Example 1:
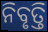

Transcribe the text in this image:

ନିବୃତ୍ତି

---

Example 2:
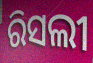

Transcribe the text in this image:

ରିସଲୀ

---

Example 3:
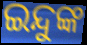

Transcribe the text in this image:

ଇନ୍ଦୁଙ୍କ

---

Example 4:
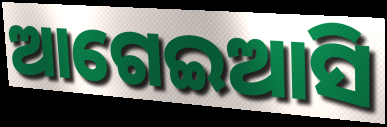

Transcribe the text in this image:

ଆଗେଇଆସି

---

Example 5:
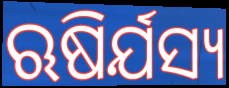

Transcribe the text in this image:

ଋଷିର୍ଯସ୍ୟ